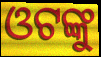
ଓଟଙ୍କୁ